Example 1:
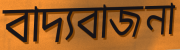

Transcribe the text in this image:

বাদ্যবাজনা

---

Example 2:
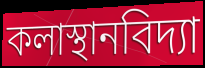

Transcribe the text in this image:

কলাস্থানবিদ্যা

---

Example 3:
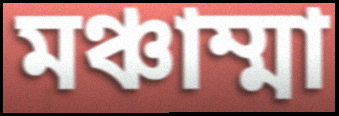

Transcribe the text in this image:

মঞ্চাম্মা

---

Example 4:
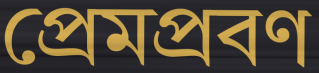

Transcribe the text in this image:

প্রেমপ্রবণ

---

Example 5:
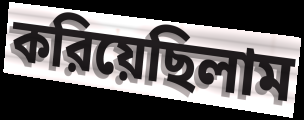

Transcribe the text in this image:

করিয়েছিলাম